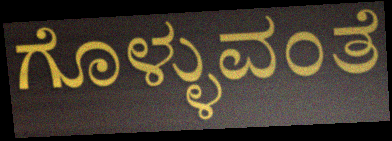
ಗೊಳ್ಳುವಂತೆ